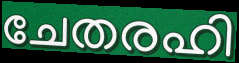
ചേതരഹി